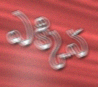
ఎక్కిన